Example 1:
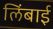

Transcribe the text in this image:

लिंबाई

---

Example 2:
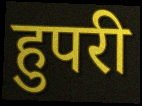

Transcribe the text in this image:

हुपरी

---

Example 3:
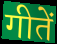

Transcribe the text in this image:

गीतें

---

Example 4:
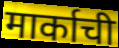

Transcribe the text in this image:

मार्काची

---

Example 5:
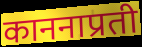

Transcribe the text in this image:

काननाप्रती